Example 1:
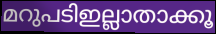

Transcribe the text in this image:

മറുപടിഇല്ലാതാക്കൂ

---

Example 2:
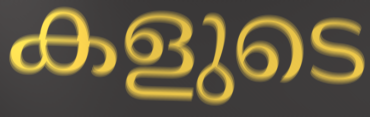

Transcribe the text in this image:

കളുടെ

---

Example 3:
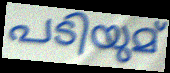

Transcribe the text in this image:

പടിയുമ്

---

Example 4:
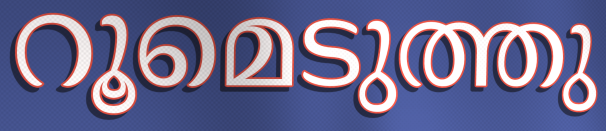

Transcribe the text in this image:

റൂമെടുത്തു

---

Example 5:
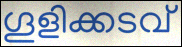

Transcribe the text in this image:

ഗൂളിക്കടവ്